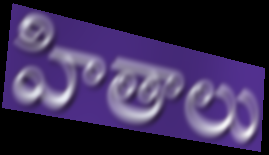
హితాలు